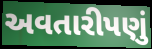
અવતારીપણું